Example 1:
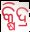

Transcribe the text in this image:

କ୍ଷିଦ୍ର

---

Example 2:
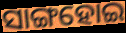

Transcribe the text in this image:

ସାଙ୍ଗହୋଇ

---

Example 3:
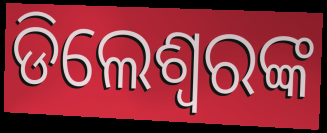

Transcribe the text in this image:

ଡିଲେଶ୍ଵରଙ୍କ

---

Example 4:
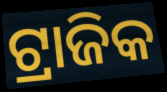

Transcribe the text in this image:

ଟ୍ରାଜିକ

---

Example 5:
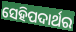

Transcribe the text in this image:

ସେହିପଦାର୍ଥର